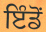
ਇੰਡੋਂ